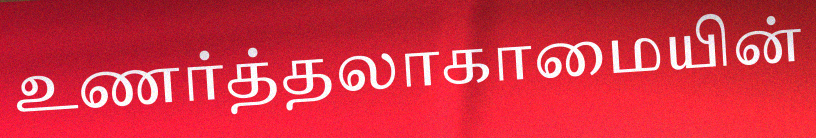
உணர்த்தலாகாமையின்